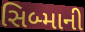
સિબ્માની